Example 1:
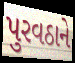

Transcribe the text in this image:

પુરવઠાને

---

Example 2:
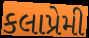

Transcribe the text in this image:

કલાપ્રેમી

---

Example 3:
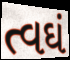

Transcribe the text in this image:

ત્વઘં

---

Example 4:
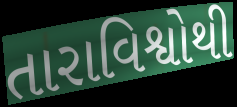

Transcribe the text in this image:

તારાવિશ્વોથી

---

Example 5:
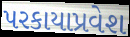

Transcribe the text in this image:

પરકાયાપ્રવેશ